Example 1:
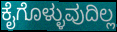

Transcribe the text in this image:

ಕೈಗೊಳ್ಳುವುದಿಲ್ಲ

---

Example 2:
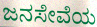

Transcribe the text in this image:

ಜನಸೇವೆಯ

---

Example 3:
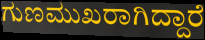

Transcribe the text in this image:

ಗುಣಮುಖರಾಗಿದ್ದಾರೆ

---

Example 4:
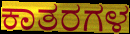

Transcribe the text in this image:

ಕಾತರಗಳ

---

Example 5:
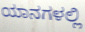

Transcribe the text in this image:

ಯಾನಗಳಲ್ಲಿ